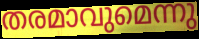
തരമാവുമെന്നു